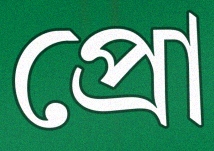
প্রো